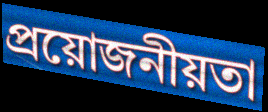
প্ৰয়োজনীয়তা